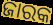
ଜାରକ